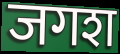
जगश